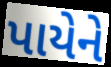
પાયેને